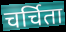
चर्चिता